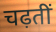
चढ़तीं